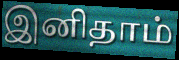
இனிதாம்